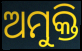
ଅମୁକ୍ତି